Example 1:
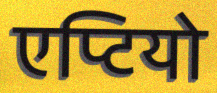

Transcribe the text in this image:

एप्टियो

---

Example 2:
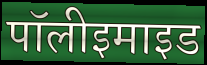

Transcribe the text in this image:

पॉलीइमाइड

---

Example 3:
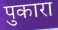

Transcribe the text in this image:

पुकारा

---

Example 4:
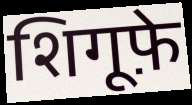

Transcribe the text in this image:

शिगूफ़े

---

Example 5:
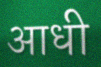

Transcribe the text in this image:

आधी